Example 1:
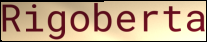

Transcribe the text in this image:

Rigoberta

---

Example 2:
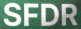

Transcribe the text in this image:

SFDR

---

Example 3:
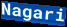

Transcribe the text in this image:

Nagari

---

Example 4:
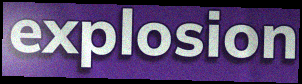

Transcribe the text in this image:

explosion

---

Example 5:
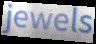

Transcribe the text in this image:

jewels